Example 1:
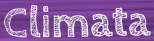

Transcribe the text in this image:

Climata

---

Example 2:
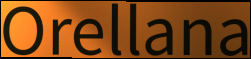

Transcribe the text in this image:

Orellana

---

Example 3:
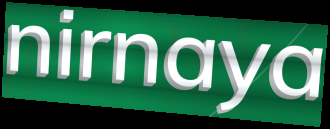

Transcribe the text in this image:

nirnaya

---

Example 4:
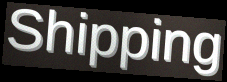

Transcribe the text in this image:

Shipping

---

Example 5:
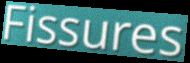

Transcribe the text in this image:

Fissures